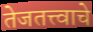
तेजतत्त्वाचे